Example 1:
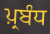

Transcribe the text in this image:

ਪ਼੍ਰਬੰਧ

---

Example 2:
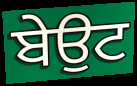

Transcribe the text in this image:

ਬੇਉਟ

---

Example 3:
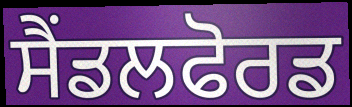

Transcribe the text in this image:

ਸੈਂਡਲਫੋਰਡ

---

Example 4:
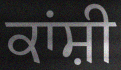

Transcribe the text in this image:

ਕਾਂਸ਼ੀ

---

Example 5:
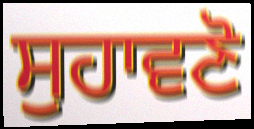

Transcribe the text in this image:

ਸੁਹਾਵਣੋ